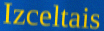
Izceltais